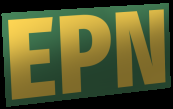
EPN